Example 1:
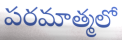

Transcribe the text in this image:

పరమాత్మలో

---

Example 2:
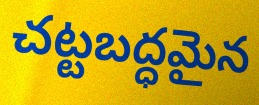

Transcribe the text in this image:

చట్టబద్ధమైన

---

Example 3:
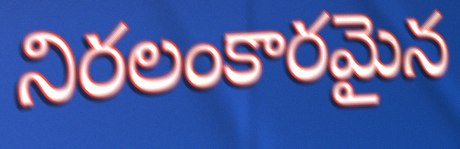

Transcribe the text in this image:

నిరలంకారమైన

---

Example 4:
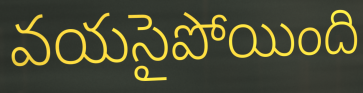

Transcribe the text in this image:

వయసైపోయింది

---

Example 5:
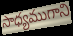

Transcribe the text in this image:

సాధ్యముగాని